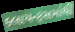
ક્લાયન્ટ્સમાંથી